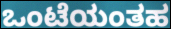
ಒಂಟೆಯಂತಹ